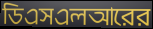
ডিএসএলআরের